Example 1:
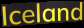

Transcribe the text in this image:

Iceland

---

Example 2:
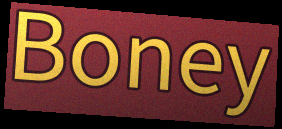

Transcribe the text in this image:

Boney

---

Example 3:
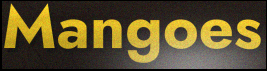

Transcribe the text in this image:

Mangoes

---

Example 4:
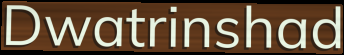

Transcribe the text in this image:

Dwatrinshad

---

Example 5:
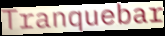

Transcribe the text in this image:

Tranquebar